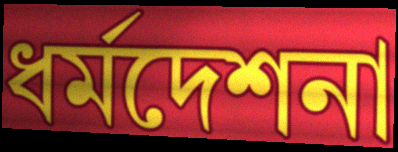
ধর্মদেশনা